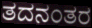
ತದನಂತರ